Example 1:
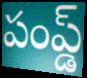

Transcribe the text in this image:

పంప్డ్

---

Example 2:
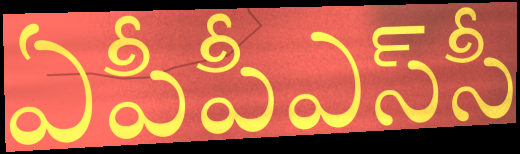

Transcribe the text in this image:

ఏపీపీఎస్‌సీ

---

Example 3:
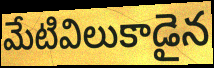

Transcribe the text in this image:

మేటివిలుకాడైన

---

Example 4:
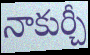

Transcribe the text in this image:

నాకుర్చీ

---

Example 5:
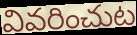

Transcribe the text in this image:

వివరించుట